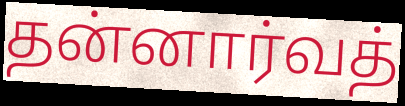
தன்னார்வத்